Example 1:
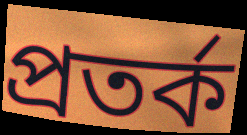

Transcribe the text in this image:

প্রতর্ক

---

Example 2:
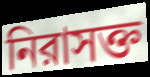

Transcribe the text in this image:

নিরাসক্ত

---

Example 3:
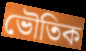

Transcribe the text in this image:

ভৌতিক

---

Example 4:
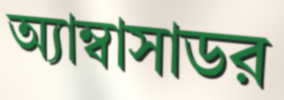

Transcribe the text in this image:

অ্যাম্বাসাডর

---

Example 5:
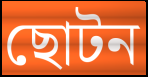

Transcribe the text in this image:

ছোটন